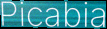
Picabia